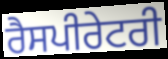
ਰੈਸਪੀਰੇਟਰੀ